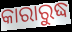
କାରାରୁଦ୍ଧ